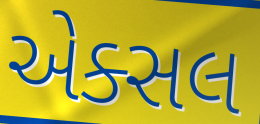
એક્સલ